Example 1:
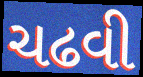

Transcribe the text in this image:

ચઢવી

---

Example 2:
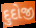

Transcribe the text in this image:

દુદોજી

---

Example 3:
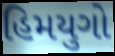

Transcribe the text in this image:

હિમયુગો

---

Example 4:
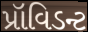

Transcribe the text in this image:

પ્રૉવિડન્ટ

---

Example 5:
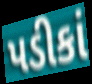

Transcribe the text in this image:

પડીકાં